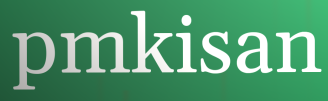
pmkisan